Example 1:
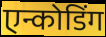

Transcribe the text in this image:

एन्कोडिंग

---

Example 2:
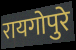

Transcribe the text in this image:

रायगोपुरे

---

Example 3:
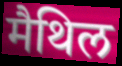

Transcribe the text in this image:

मैथिल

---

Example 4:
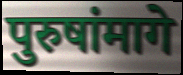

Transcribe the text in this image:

पुरुषांमागे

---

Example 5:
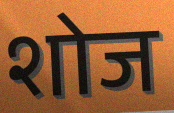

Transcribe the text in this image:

शोज